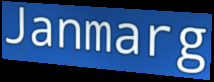
Janmarg